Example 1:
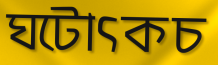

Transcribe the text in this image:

ঘটোৎকচ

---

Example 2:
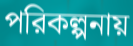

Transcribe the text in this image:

পরিকল্পনায়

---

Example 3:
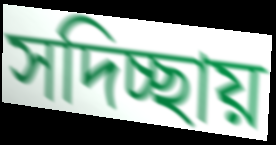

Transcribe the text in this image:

সদিচ্ছায়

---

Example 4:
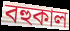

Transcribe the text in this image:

বহুকাল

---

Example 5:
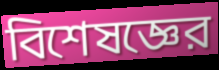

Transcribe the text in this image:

বিশেষজ্ঞের